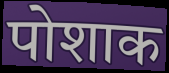
पोशाक